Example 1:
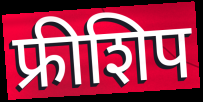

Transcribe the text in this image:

फ्रीशिप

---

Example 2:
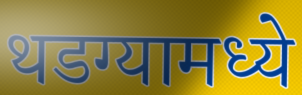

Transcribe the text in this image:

थडग्यामध्ये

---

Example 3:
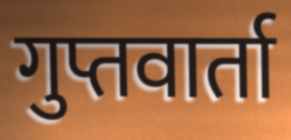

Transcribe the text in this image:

गुप्तवार्ता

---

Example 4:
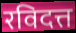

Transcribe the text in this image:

रविदत्त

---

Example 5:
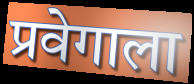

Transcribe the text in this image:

प्रवेगाला